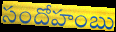
సందోహంబు